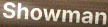
Showman